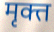
मृक्त